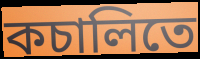
কচালিতে